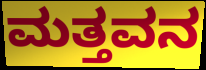
ಮತ್ತವನ